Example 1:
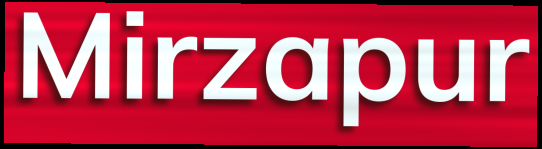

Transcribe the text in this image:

Mirzapur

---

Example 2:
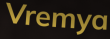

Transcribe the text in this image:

Vremya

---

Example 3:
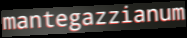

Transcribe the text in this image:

mantegazzianum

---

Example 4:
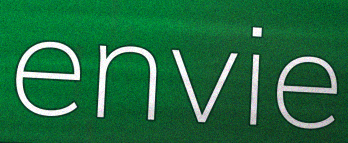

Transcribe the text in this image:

envie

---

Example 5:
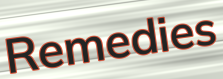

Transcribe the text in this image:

Remedies